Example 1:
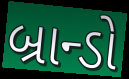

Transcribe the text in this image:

બ્રાન્ડો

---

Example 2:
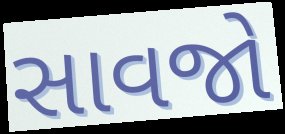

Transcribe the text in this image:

સાવજો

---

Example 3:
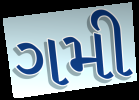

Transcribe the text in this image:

ગમી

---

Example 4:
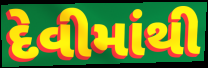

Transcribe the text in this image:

દેવીમાંથી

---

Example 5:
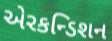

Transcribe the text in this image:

એરકન્ડિશન